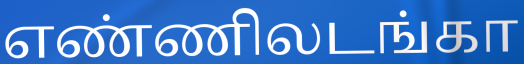
எண்ணிலடங்கா